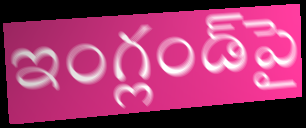
ఇంగ్లండ్‌పై